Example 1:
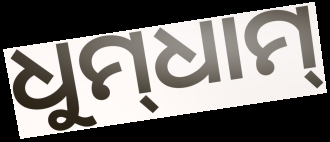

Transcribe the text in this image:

ଧୁମ୍‌ଧାମ୍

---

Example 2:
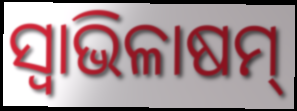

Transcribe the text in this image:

ସ୍ବାଭିଳାଷମ୍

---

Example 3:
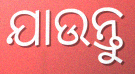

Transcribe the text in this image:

ଯାଉନ୍ତୁ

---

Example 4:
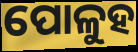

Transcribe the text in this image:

ପୋଳୁହ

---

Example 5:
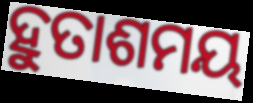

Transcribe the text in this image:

ହୁତାଶମୟ